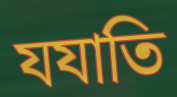
যযাতি